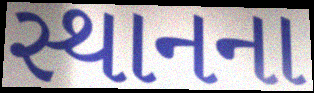
સ્થાનના